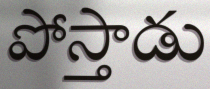
పోస్తాడు